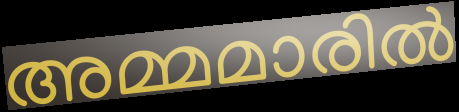
അമ്മമാരിൽ